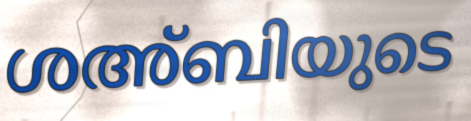
ശഅ്ബിയുടെ